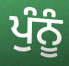
ਪੁੰਨੂੰ